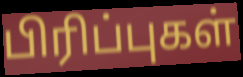
பிரிப்புகள்